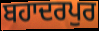
ਬਹਾਦਰਪੁਰ